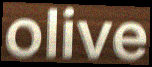
olive